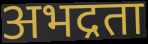
अभद्रता